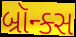
બ્રૉન્ક્સ